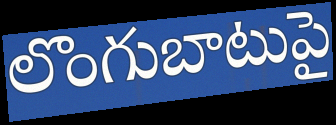
లొంగుబాటుపై